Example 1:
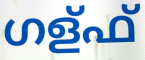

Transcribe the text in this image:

ഗള്ഫ്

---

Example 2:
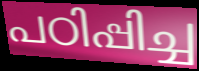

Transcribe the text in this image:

പഠിപ്പിച്ച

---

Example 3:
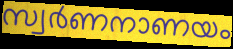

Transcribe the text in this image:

സ്വർണനാണയം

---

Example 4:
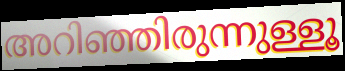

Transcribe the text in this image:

അറിഞ്ഞിരുന്നുള്ളൂ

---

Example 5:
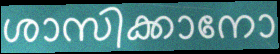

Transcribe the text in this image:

ശാസിക്കാനോ